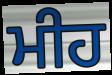
ਮੀਹ